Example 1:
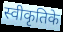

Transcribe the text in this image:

स्वीकृतिके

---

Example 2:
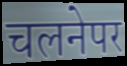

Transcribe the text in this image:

चलनेपर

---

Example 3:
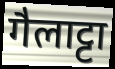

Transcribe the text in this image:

गैलाट्टा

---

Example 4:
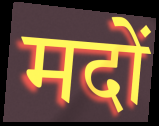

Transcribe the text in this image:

मदों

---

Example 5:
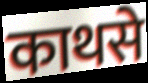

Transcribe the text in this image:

काथसे